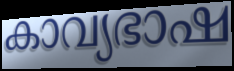
കാവ്യഭാഷ